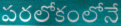
పరలోకంలోనే